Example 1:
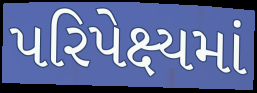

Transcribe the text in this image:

પરિપેક્ષ્યમાં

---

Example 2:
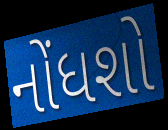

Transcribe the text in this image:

નોંધશો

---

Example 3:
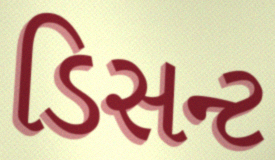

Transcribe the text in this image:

ડિસન્ટ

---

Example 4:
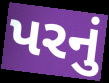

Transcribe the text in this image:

પરનું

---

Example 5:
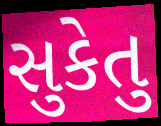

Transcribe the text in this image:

સુકેતુ